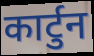
कार्टुन